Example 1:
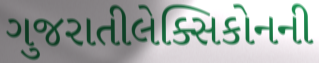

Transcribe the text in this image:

ગુજરાતીલેક્સિકોનની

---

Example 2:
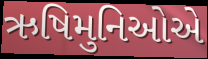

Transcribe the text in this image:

ઋષિમુનિઓએ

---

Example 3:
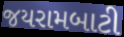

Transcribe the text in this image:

જયરામબાટી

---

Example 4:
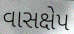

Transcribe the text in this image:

વાસક્ષેપ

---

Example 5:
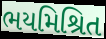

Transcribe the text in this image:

ભયમિશ્રિત